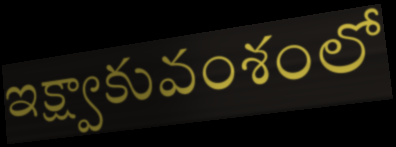
ఇక్ష్వాకువంశంలో